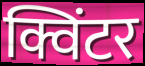
क्विंटर